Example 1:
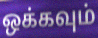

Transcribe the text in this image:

ஒக்கவும்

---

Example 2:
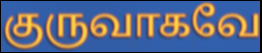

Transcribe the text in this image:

குருவாகவே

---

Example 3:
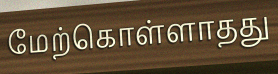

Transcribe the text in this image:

மேற்கொள்ளாதது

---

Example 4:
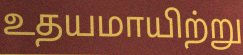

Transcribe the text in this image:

உதயமாயிற்று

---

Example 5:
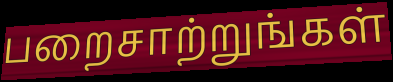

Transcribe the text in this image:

பறைசாற்றுங்கள்